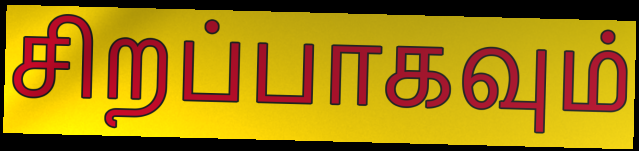
சிறப்பாகவும்